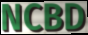
NCBD